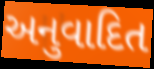
અનુવાદિત